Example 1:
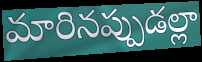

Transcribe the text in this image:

మారినప్పుడల్లా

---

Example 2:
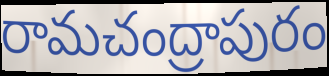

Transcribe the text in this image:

రామచంద్రాపురం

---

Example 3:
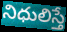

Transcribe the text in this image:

నిధులిస్తే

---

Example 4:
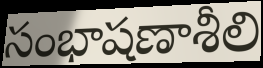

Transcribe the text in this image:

సంభాషణాశీలి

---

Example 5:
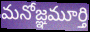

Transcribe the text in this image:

మనోజ్ఞమూర్తి